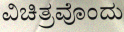
ವಿಚಿತ್ರವೊಂದು